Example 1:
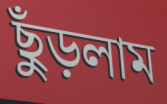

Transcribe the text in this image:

ছুঁড়লাম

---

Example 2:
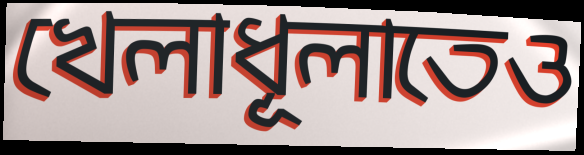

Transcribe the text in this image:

খেলাধূলাতেও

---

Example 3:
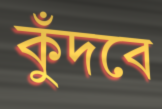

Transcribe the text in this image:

কুঁদবে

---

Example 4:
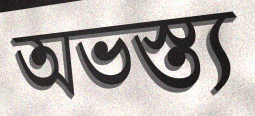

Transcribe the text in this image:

অভস্ত্য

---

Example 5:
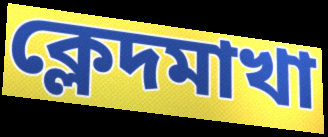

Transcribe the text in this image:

ক্লেদমাখা